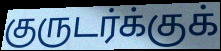
குருடர்க்குக்